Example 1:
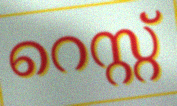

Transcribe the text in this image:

റെസ്റ്റ്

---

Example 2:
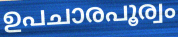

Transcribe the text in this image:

ഉപചാരപൂര്വം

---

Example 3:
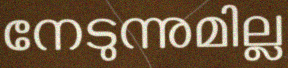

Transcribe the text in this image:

നേടുന്നുമില്ല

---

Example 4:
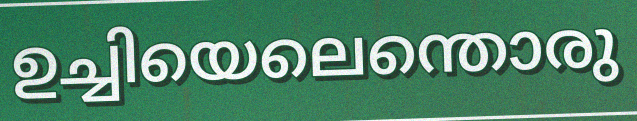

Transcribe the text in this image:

ഉച്ചിയെലെന്തൊരു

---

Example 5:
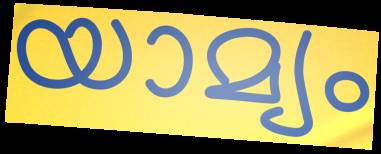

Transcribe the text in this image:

യാമ്യം